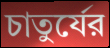
চাতুর্যের